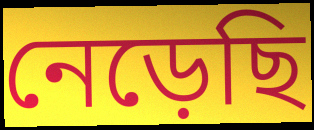
নেড়েছি